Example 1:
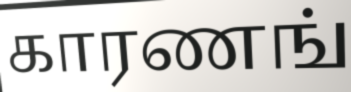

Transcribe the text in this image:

காரணங்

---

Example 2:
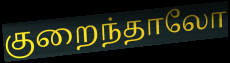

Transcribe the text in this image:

குறைந்தாலோ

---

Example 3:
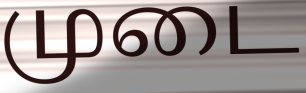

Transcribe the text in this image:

முடை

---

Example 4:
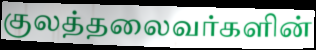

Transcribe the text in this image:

குலத்தலைவர்களின்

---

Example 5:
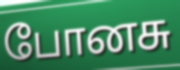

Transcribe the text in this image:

போனசு